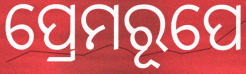
ପ୍ରେମରୂପେ